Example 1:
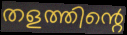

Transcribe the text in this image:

തളത്തിന്റെ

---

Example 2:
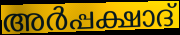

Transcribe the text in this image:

അർപ്പക്ഷാദ്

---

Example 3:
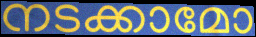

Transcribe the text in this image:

നടക്കാമോ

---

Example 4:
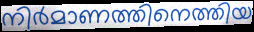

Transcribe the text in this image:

നിർമാണത്തിനെത്തിയ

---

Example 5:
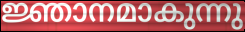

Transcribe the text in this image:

ജ്ഞാനമാകുന്നു